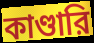
কাণ্ডারি